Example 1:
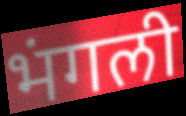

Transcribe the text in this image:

भंगली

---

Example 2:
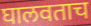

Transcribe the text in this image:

घालवताच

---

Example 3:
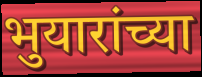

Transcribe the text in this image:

भुयारांच्या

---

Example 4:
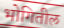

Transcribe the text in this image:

भोगितील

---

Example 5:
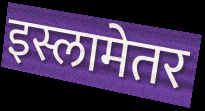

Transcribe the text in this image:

इस्लामेतर